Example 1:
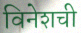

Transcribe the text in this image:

विनेशची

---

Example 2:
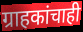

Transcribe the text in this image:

ग्राहकांचाही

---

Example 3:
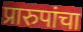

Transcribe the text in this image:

प्रारुपांचा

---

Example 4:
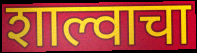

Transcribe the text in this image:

शाल्वाचा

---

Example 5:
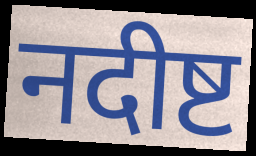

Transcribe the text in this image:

नदीष्ट